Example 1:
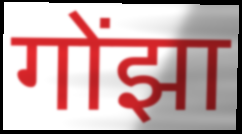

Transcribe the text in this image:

गोंझा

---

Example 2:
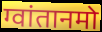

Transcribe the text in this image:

ग्वांतानमो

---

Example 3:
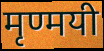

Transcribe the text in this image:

मृण्मयी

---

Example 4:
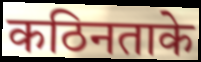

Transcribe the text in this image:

कठिनताके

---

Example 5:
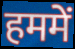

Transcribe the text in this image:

हममें